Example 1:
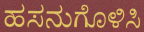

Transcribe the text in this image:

ಹಸನುಗೊಳಿಸಿ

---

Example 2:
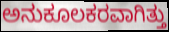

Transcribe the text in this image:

ಅನುಕೂಲಕರವಾಗಿತ್ತು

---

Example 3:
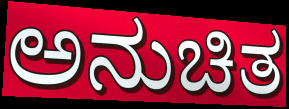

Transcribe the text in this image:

ಅನುಚಿತ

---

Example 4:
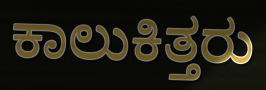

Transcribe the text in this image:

ಕಾಲುಕಿತ್ತರು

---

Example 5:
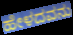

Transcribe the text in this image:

ಹೇಳದವನು